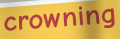
crowning